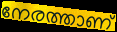
നേരത്താണ്